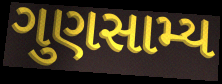
ગુણસામ્ય